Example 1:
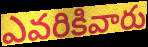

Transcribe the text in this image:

ఎవరికివారు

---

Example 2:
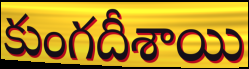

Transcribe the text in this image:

కుంగదీశాయి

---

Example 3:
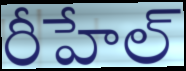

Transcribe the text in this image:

రీహేల్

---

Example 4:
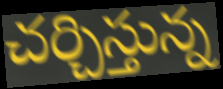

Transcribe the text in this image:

చర్చిస్తున్న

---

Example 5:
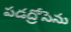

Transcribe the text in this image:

పడద్రోసెను